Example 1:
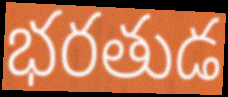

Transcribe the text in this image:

భరతుడ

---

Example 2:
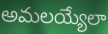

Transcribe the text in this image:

అమలయ్యేలా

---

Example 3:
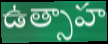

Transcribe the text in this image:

ఉత్సాహ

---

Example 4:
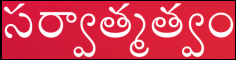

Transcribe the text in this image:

సర్వాత్మత్వం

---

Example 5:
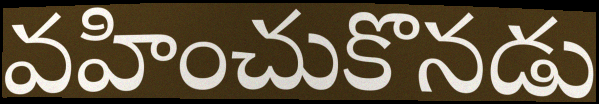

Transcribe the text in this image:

వహించుకొనడు